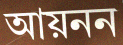
আয়নন